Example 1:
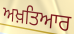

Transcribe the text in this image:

ਅਖ਼ਤਿਆਰ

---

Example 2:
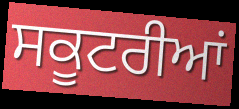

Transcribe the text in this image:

ਸਕੂਟਰੀਆਂ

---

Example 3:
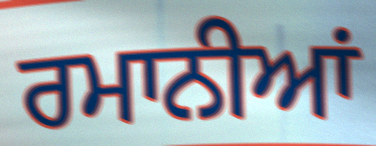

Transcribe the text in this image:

ਰਮਾਨੀਆਂ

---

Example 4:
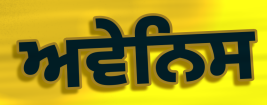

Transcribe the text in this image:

ਅਵੇਨਿਸ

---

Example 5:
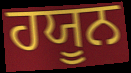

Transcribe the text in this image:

ਹਯੂਨ